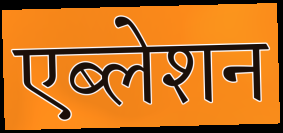
एब्लेशन